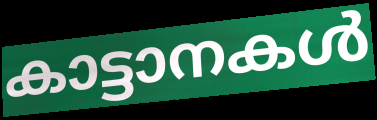
കാട്ടാനകൾ